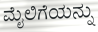
ಮೈಲಿಗೆಯನ್ನು